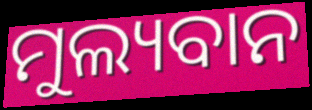
ମୁଲ୍ୟବାନ